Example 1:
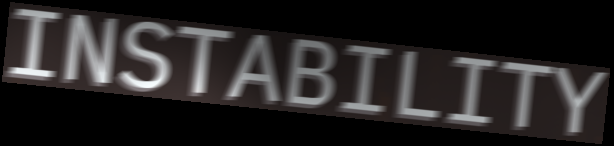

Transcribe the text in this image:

INSTABILITY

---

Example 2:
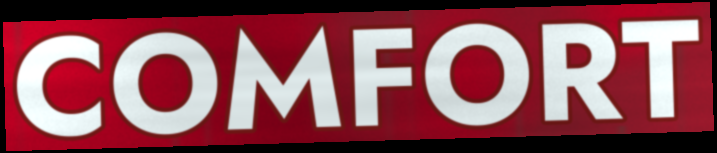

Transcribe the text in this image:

COMFORT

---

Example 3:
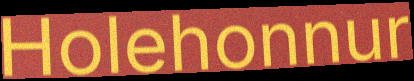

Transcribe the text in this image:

Holehonnur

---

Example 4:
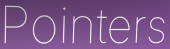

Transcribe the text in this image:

Pointers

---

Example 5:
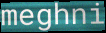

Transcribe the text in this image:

meghni